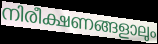
നിരീക്ഷണങ്ങളാലും